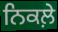
ਨਿਕਲ਼ੇ